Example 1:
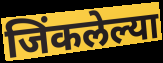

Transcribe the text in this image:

जिंकलेल्या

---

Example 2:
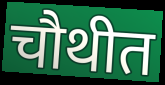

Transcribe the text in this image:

चौथीत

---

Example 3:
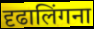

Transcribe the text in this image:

दृढालिंगना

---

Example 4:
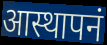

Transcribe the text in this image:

आस्थापनं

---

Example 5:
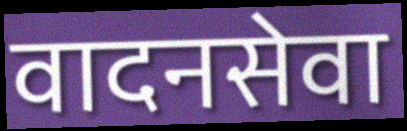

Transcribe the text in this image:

वादनसेवा